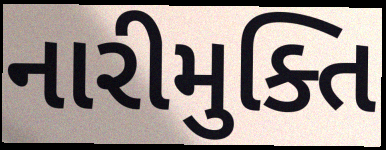
નારીમુક્તિ